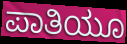
ಪಾತಿಯೂ